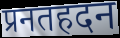
प्रनतहदन